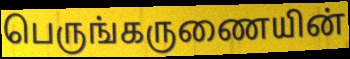
பெருங்கருணையின்